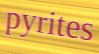
pyrites